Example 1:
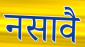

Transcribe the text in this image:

नसावै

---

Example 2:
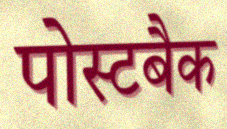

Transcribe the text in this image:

पोस्टबैक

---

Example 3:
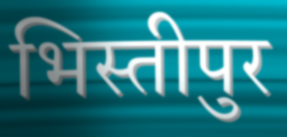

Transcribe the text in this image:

भिस्तीपुर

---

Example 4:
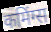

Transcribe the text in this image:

कमिंग्स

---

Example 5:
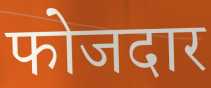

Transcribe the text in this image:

फोजदार